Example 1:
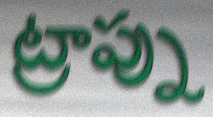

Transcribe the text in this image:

ట్రాప్ను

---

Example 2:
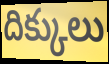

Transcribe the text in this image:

దిక్కులు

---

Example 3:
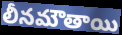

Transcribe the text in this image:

లీనమౌతాయి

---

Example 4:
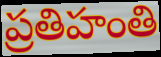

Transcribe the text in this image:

ప్రతిహంతి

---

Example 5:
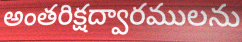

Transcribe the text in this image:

అంతరిక్షద్వారములను